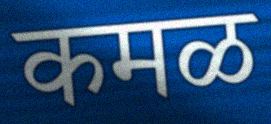
कमळ